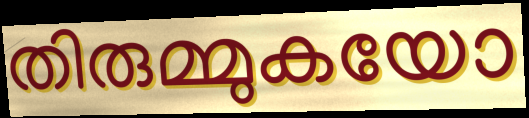
തിരുമ്മുകയോ